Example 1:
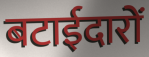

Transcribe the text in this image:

बटाईदारों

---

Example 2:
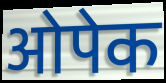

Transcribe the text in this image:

ओपेक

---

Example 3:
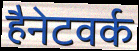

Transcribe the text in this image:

हैनेटवर्क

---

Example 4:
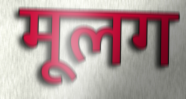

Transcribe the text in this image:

मूलग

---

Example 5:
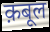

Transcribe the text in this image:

क़बूल